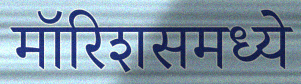
मॉरिशसमध्ये